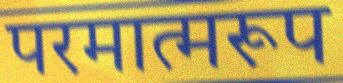
परमात्मरूप